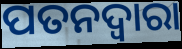
ପତନଦ୍ୱାରା